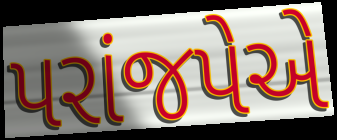
પરાંજપેએ